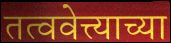
तत्ववेत्त्याच्या